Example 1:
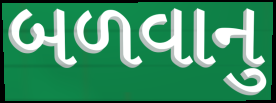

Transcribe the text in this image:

બળવાનુ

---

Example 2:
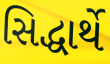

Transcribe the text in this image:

સિદ્ધાર્થે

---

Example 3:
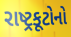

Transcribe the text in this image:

રાષ્ટ્રકૂટોનો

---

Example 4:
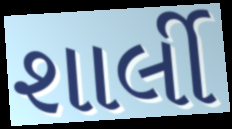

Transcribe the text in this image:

શાર્લી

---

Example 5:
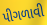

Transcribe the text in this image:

પીગળાવી